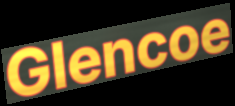
Glencoe